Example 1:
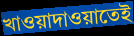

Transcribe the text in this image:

খাওয়াদাওয়াতেই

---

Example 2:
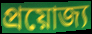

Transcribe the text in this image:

প্রয়োজ্য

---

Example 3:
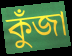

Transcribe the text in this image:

কুঁজা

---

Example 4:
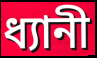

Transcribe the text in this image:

ধ্যানী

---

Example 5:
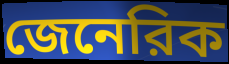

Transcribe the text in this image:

জেনেরিক